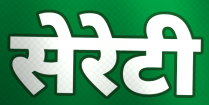
सेरेटी